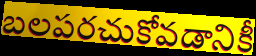
బలపరచుకోవడానికీ